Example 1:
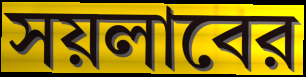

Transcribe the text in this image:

সয়লাবের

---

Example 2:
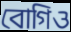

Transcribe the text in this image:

বোগিও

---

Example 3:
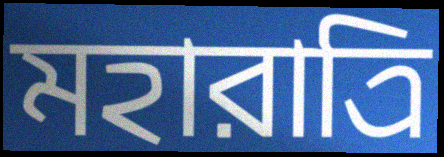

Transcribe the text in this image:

মহারাত্রি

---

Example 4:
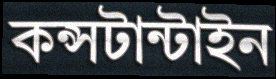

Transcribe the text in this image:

কন্সটান্টাইন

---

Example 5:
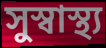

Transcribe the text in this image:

সুস্বাস্থ্য